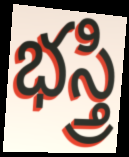
భస్త్రి